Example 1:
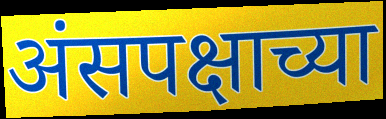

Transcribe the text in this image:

अंसपक्षाच्या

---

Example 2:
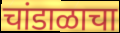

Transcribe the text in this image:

चांडाळाचा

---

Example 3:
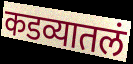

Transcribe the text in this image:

कडव्यातलं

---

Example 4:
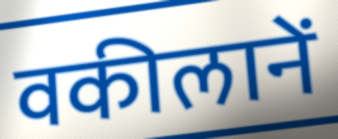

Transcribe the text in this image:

वकीलानें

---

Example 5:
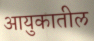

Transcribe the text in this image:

आयुकातील